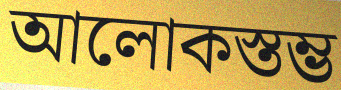
আলোকস্তম্ভ